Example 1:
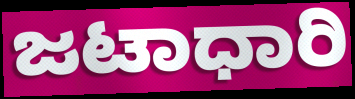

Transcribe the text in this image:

ಜಟಾಧಾರಿ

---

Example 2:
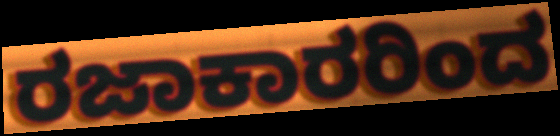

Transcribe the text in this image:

ರಜಾಕಾರರಿಂದ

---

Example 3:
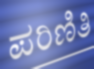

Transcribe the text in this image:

ಪರಿಣಿತಿ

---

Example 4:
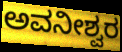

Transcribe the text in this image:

ಅವನೀಶ್ವರ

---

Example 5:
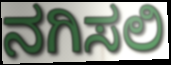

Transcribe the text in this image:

ನಗಿಸಲಿ